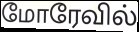
மோரேவில்